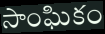
సాంఘికం